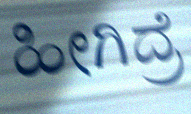
ಹೀಗಿದ್ರೆ